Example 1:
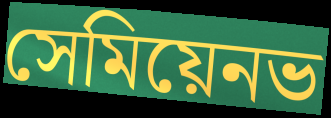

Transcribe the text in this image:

সেমিয়েনভ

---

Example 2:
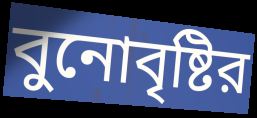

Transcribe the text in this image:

বুনোবৃষ্টির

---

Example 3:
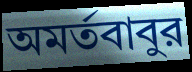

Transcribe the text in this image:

অমর্তবাবুর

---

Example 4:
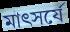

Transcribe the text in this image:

মাৎসর্যে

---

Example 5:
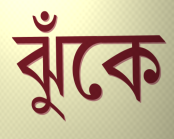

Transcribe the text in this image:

ঝুঁকে